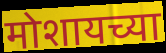
मोशायच्या